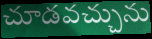
చూడవచ్చును